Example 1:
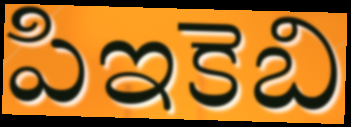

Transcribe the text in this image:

పిఇకెబి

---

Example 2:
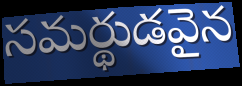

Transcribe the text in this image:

సమర్థుడవైన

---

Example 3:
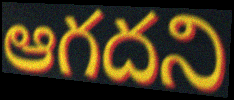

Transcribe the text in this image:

ఆగదని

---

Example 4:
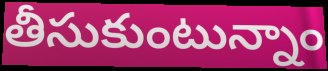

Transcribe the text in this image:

తీసుకుంటున్నాం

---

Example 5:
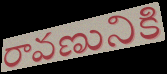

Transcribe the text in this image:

రావణునికి